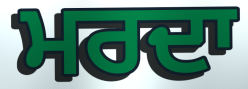
ਮਰਦਾ